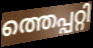
ത്തെപ്പറ്റി